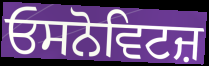
ਓਸਨੋਵਿਟਜ਼